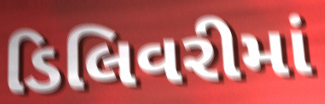
ડિલિવરીમાં